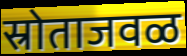
स्रोताजवळ